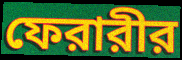
ফেরারীর